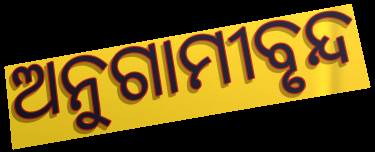
ଅନୁଗାମୀବୃନ୍ଦ